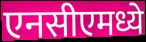
एनसीएमध्ये